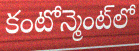
కంటోన్మెంట్‌లో